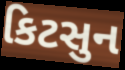
કિટસુન